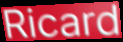
Ricard